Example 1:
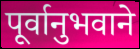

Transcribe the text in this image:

पूर्वानुभवाने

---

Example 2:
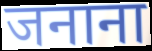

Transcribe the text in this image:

जनाना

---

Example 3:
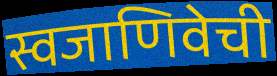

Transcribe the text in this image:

स्वजाणिवेची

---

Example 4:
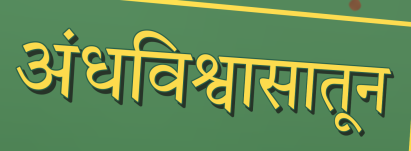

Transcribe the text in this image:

अंधविश्वासातून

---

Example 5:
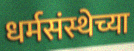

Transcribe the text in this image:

धर्मसंस्थेच्या